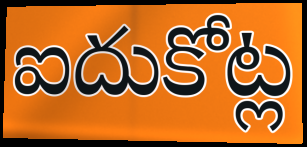
ఐదుకోట్ల